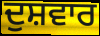
ਦੁਸ਼ਵਾਰ